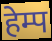
हेम्प